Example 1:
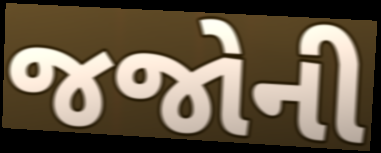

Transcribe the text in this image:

જજોની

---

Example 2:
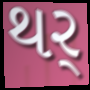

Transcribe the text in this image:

થર્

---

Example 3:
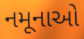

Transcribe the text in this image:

નમૂનાઓ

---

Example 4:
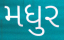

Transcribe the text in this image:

મધુર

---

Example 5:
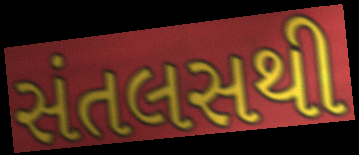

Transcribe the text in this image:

સંતલસથી